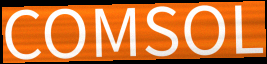
COMSOL